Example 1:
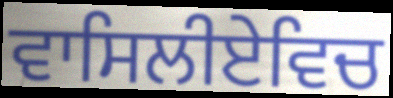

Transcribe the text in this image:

ਵਾਸਿਲੀਏਵਿਚ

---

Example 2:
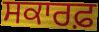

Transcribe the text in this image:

ਸਕਾਰਫ਼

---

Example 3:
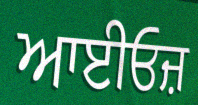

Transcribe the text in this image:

ਆਈਓਜ਼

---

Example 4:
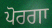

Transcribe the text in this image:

ਪੋਰਗਾ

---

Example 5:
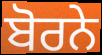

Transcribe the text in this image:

ਬੋਰਨੇ